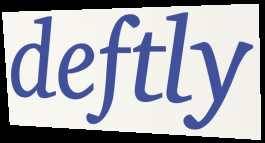
deftly